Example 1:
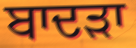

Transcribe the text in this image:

ਬਾਦੜਾ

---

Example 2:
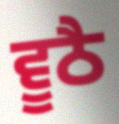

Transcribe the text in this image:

ਵੂਠੈ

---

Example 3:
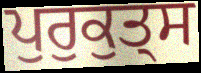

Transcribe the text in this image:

ਪੁਰੁਕੁਤ੍ਸ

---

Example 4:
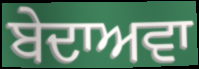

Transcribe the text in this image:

ਬੇਦਾਅਵਾ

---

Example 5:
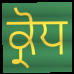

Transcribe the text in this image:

ਕ੍ਰੋਧ